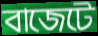
বাজেটে